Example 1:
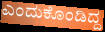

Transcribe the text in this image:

ಎಂದುಕೊಂಡಿದ್ದ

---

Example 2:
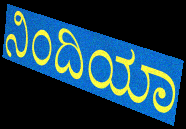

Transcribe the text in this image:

ನಿಂದಿಯಾ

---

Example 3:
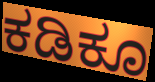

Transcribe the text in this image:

ಕಡಿಕೂ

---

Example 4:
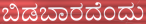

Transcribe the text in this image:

ಬಿಡಬಾರದೆಂದು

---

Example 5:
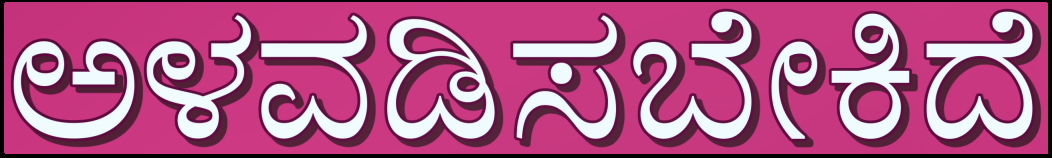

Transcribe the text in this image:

ಅಳವಡಿಸಬೇಕಿದೆ